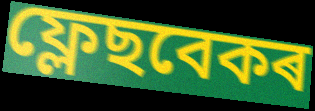
ফ্লেছবেকৰ